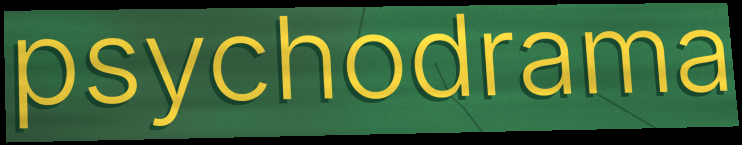
psychodrama